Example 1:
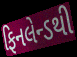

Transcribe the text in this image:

ફિનલેન્ડથી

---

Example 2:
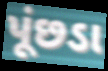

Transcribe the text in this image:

પૂંછડા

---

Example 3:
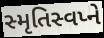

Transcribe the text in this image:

સ્મૃતિસ્વપ્ને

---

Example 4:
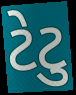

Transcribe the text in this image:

ટેટુ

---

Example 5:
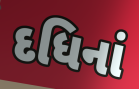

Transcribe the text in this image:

દધિનાં